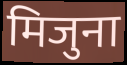
मिजुना